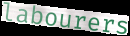
labourers